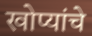
खोप्यांचे